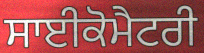
ਸਾਈਕੋਮੈਟਰੀ